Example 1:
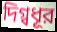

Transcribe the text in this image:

দিগ্বধূর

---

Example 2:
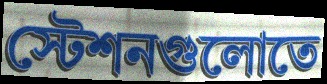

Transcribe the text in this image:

স্টেশনগুলোতে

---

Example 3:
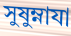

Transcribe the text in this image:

সুষুম্নাযা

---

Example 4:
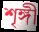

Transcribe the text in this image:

শৃঙ্গী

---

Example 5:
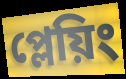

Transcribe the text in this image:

প্লেয়িং